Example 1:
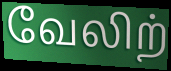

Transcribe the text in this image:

வேலிற்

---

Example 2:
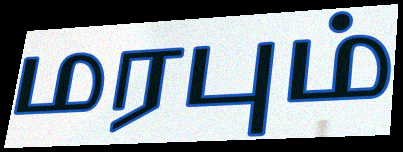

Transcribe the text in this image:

மரபும்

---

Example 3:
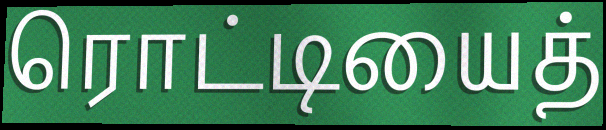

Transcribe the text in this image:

ரொட்டியைத்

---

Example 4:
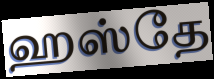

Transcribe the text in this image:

ஹஸ்தே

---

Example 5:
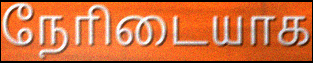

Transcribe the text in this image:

நேரிடையாக